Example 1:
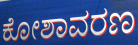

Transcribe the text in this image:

ಕೋಶಾವರಣ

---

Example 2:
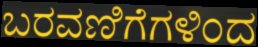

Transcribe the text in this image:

ಬರವಣಿಗೆಗಳಿಂದ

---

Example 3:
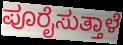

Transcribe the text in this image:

ಪೂರೈಸುತ್ತಾಳೆ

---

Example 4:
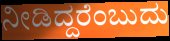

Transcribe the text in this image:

ನೀಡಿದ್ದರೆಂಬುದು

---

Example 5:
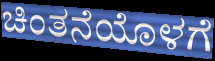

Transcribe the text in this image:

ಚಿಂತನೆಯೊಳಗೆ